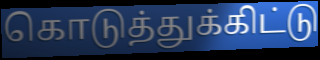
கொடுத்துக்கிட்டு